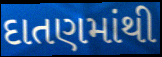
દાતણમાંથી